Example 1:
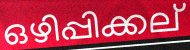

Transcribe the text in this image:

ഒഴിപ്പിക്കല്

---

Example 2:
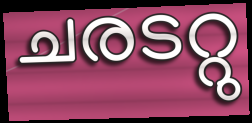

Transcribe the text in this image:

ചരടറ്റു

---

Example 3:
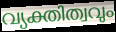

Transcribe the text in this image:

വ്യക്തിത്വവും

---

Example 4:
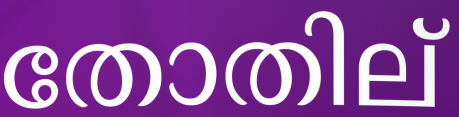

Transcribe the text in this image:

തോതില്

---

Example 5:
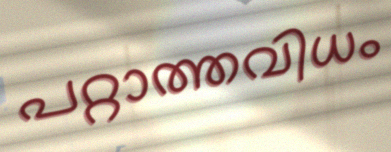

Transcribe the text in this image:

പറ്റാത്തവിധം